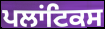
ਪਲਾਂਟਿਕਸ